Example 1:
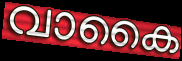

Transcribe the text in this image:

വാകൈ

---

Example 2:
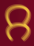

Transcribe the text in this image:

റ്റ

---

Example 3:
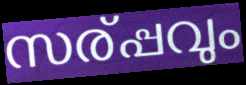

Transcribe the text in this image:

സര്പ്പവും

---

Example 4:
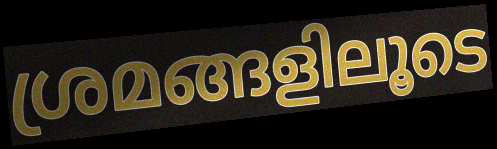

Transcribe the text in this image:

ശ്രമങ്ങളിലൂടെ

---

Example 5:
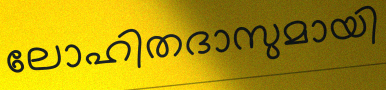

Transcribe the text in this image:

ലോഹിതദാസുമായി